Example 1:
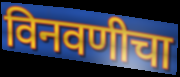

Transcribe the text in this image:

विनवणीचा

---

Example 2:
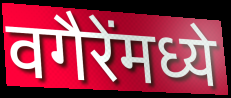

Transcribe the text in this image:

वगैरेंमध्ये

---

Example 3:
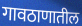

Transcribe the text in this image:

गावठाणातील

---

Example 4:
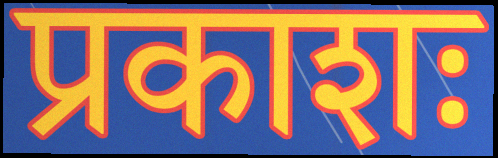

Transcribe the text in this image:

प्रकाशः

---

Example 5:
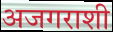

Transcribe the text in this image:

अजगराशी